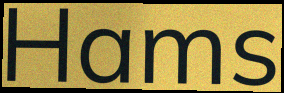
Hams